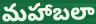
మహాబలా